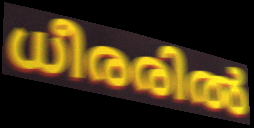
ധീരരിൽ